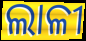
ଲାଳୀ